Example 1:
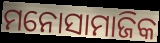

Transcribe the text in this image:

ମନୋସାମାଜିକ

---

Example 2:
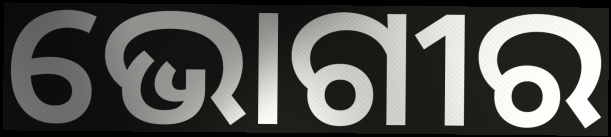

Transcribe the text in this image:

ଭୋଗୀର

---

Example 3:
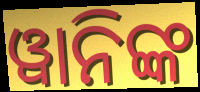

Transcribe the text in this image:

ୱାନିଙ୍କ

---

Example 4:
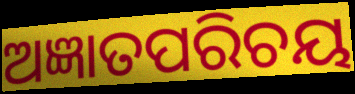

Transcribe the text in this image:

ଅଜ୍ଞାତପରିଚୟ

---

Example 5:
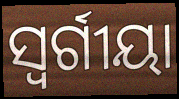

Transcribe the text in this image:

ସ୍ବର୍ଗୀୟା